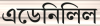
এডেনিলিল